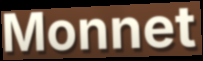
Monnet